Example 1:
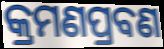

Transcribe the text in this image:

କ୍ରମଣପ୍ରବଣ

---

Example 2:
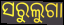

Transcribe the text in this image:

ସରୁଲୁଗା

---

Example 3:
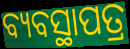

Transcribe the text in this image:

ବ୍ୟବସ୍ଥାପତ୍ର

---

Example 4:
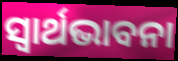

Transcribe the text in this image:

ସ୍ଵାର୍ଥଭାବନା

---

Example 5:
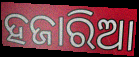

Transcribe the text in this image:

ହଜାରିଆ